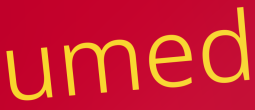
umed